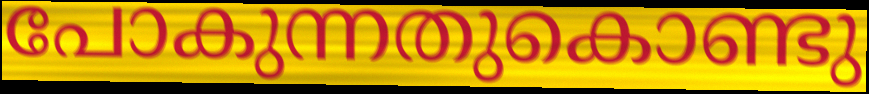
പോകുന്നതുകൊണ്ടു